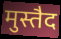
मुस्‍तैद